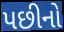
પછીનો